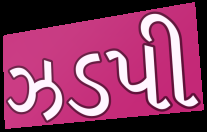
ઝડપી